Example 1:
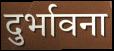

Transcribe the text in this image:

दुर्भावना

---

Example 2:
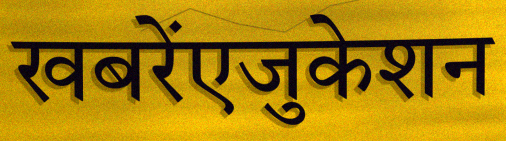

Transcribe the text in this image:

खबरेंएजुकेशन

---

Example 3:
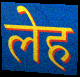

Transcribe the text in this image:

लेह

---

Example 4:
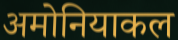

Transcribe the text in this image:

अमोनियाकल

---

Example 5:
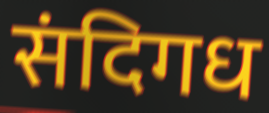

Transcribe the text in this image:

संदिगध